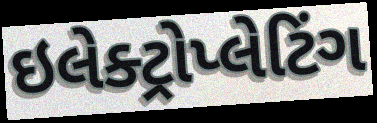
ઇલેક્ટ્રોપ્લેટિંગ